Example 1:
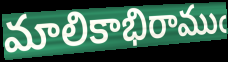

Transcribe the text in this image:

మాలికాభిరాముఁ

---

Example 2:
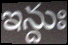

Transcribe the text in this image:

ఇన్దుః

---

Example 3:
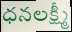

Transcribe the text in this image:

ధనలక్ష్మీ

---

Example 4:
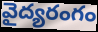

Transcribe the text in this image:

వైద్యరంగం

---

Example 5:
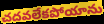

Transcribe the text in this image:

చదవలేకపోయాను